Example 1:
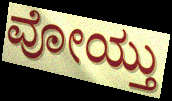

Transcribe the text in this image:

ವೋಯ್ತು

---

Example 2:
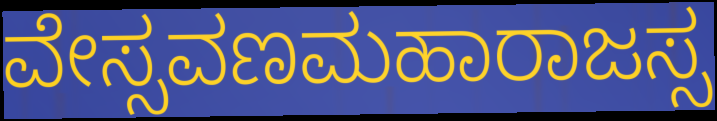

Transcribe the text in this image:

ವೇಸ್ಸವಣಮಹಾರಾಜಸ್ಸ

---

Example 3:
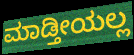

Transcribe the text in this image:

ಮಾಡ್ತೀಯಲ್ಲ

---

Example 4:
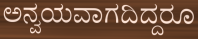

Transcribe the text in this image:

ಅನ್ವಯವಾಗದಿದ್ದರೂ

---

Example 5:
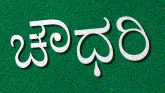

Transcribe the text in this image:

ಚೌಧರಿ